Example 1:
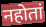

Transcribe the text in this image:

नहोतां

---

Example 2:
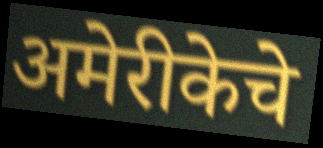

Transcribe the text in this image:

अमेरीकेचे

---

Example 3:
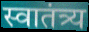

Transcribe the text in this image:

स्‍वातंत्र्य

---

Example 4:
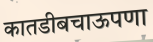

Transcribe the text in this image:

कातडीबचाऊपणा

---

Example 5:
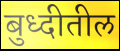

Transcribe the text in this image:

बुध्दीतील